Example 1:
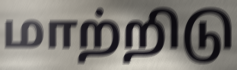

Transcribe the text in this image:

மாற்றிடு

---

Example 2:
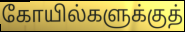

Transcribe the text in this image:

கோயில்களுக்குத்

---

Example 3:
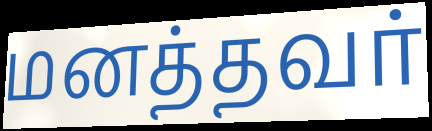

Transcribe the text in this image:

மனத்தவர்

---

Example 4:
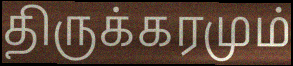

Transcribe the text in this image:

திருக்கரமும்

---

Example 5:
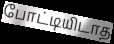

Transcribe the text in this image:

போட்டியிடாத